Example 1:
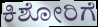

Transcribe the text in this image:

ಕಿಶೋರಿಗೆ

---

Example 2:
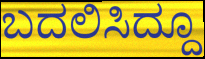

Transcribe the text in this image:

ಬದಲಿಸಿದ್ದೂ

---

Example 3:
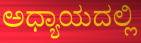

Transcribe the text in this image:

ಅಧ್ಯಾಯದಲ್ಲಿ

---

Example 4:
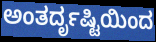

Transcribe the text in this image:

ಅಂತರ್ದೃಷ್ಟಿಯಿಂದ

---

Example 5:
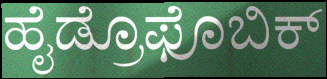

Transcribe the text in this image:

ಹೈಡ್ರೊಫೊಬಿಕ್